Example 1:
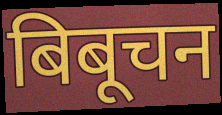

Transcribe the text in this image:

बिबूचन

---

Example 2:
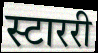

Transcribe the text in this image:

स्टाररी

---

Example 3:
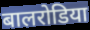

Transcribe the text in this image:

बालरोडिया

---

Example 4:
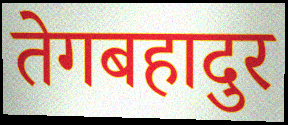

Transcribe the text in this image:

तेगबहादुर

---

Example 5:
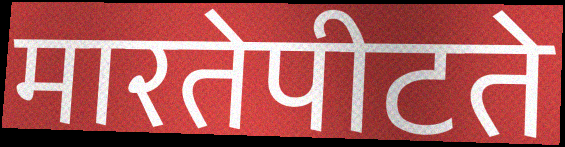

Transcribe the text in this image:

मारतेपीटते